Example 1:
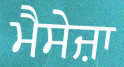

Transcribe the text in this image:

ਮੈਸੇਜ਼ਾ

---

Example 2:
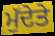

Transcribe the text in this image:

ਮੁੱਦੇਤੇ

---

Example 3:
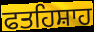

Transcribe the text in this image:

ਫਤਹਿਸ਼ਾਹ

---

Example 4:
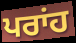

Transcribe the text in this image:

ਪਰਾਂਹ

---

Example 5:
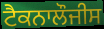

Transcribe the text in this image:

ਟੈਕਨਾਲੌਜੀਸ